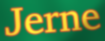
Jerne